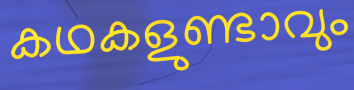
കഥകളുണ്ടാവും